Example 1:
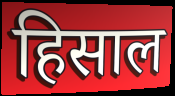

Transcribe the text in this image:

हिसाल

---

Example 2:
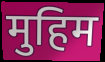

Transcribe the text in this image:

मुहिम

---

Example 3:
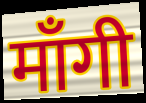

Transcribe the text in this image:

माँगी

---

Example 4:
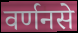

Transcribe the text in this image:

वर्णनसे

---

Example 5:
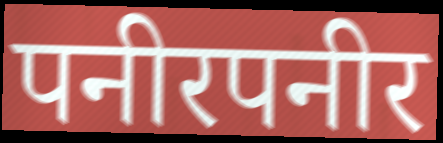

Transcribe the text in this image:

पनीरपनीर